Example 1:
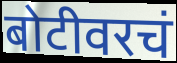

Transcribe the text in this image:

बोटीवरचं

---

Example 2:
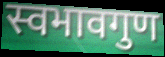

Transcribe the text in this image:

स्वभावगुण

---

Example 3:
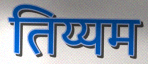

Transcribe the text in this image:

तिय्यम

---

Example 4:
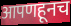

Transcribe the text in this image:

आपणहूनच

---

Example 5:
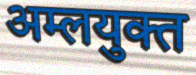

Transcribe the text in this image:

अम्लयुक्त